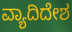
ವ್ಯಾದಿದೇಶ